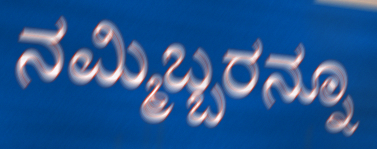
ನಮ್ಮಿಬ್ಬರನ್ನೂ